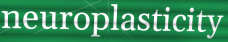
neuroplasticity